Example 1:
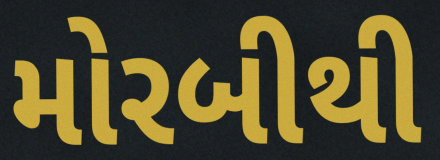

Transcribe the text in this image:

મોરબીથી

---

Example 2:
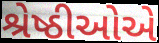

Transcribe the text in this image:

શ્રેષ્ઠીઓએ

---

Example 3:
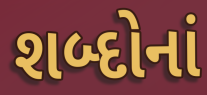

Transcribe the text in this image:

શબ્દોનાં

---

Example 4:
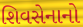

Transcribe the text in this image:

શિવસેનાનો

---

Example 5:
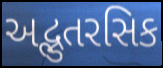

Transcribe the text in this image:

અદ્ભુતરસિક